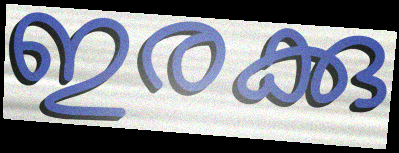
ഇരക്കു